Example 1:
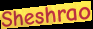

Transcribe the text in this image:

Sheshrao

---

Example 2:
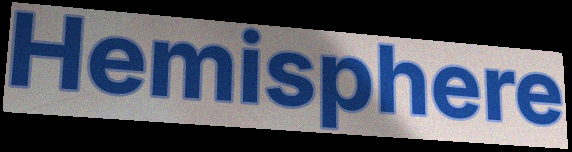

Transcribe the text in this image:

Hemisphere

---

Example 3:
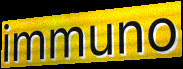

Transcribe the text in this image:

immuno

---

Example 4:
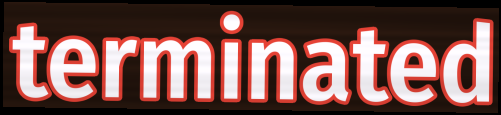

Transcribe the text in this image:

terminated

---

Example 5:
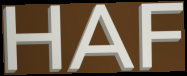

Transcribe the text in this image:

HAF